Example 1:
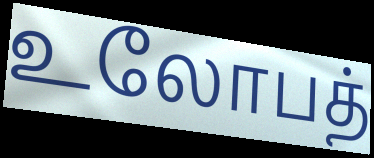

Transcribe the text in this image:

உலோபத்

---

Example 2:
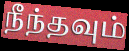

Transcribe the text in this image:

நீந்தவும்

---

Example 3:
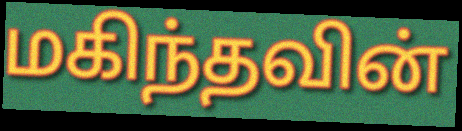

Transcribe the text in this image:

மகிந்தவின்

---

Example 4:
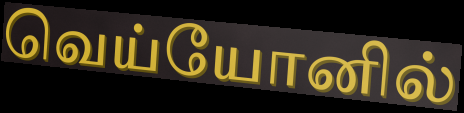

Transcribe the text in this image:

வெய்யோனில்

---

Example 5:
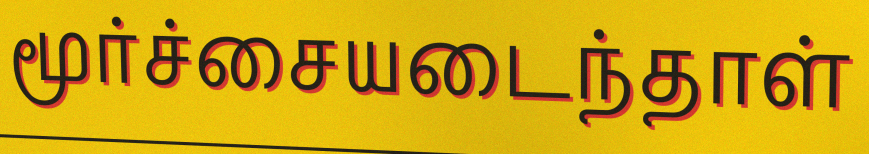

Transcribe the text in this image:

மூர்ச்சையடைந்தாள்